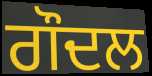
ਗੌਦਲ